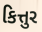
કિત્તુર